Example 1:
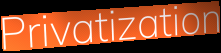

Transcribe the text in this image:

Privatization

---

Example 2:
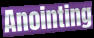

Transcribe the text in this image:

Anointing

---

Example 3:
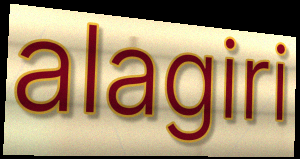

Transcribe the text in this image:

alagiri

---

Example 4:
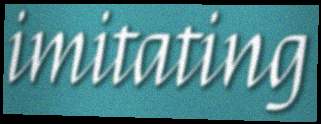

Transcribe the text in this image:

imitating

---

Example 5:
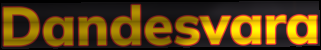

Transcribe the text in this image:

Dandesvara